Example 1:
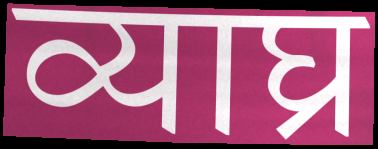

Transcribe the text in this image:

व्याघ्र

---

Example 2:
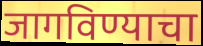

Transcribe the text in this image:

जागविण्याचा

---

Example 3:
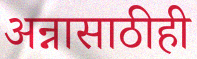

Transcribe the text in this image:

अन्नासाठीही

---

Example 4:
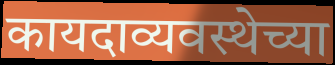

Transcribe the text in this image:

कायदाव्यवस्थेच्या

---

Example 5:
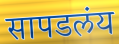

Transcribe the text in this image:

सापडलंय